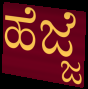
ಹೆಜ್ಜೆ